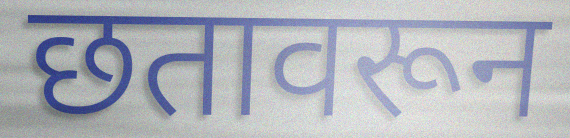
छतावरून